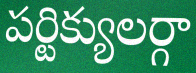
పర్టిక్యులర్గా